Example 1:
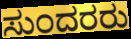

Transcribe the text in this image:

ಸುಂದರರು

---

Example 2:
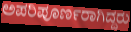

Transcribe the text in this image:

ಅಪರಿಪೂರ್ಣರಾಗಿದ್ದರು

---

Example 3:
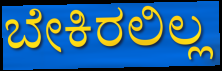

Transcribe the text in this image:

ಬೇಕಿರಲಿಲ್ಲ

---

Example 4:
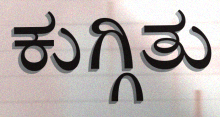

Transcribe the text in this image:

ಕುಗ್ಗಿತು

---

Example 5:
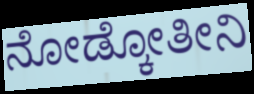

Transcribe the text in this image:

ನೋಡ್ಕೋತೀನಿ